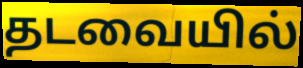
தடவையில்